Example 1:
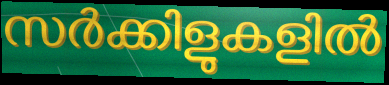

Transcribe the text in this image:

സർക്കിളുകളിൽ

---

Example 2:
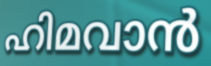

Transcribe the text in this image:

ഹിമവാൻ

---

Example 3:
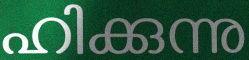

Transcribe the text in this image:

ഹിക്കുന്നു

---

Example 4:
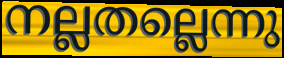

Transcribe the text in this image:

നല്ലതല്ലെന്നു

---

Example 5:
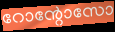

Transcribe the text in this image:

റോന്റോസോ